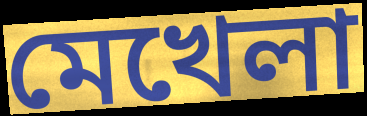
মেখেলা